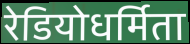
रेडियोधर्मिता